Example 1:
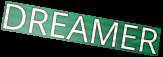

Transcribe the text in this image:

DREAMER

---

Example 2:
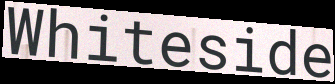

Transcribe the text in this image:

Whiteside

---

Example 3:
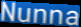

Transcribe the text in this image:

Nunna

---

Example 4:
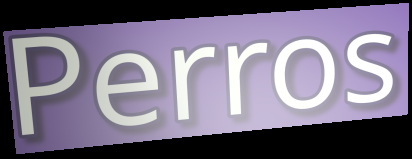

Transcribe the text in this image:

Perros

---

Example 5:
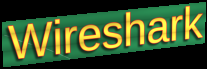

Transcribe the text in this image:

Wireshark